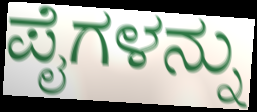
ಪೈಗಳನ್ನು